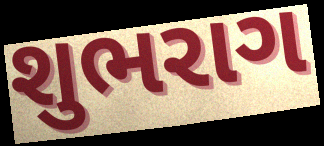
શુભરાગ